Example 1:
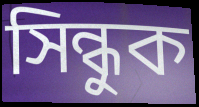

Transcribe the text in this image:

সিন্ধুক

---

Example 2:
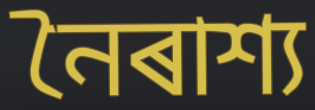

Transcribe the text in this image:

নৈৰাশ্য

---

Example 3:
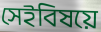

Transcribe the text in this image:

সেইবিষয়ে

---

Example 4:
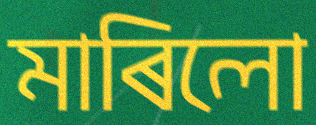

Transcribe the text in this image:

মাৰিলো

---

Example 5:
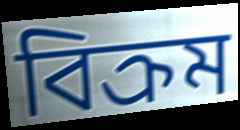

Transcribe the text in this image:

বিক্ৰম